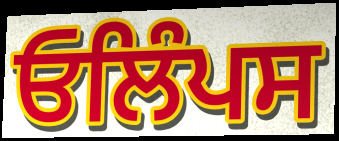
ਓਲਿੰਪਸ